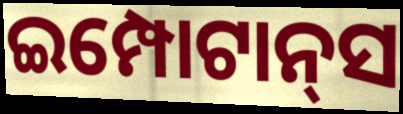
ଇମ୍ପୋଟାନ୍‌ସ